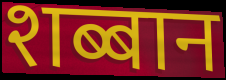
शब्बान